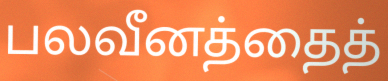
பலவீனத்தைத்